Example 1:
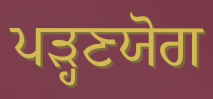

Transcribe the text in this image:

ਪੜ੍ਹਣਯੋਗ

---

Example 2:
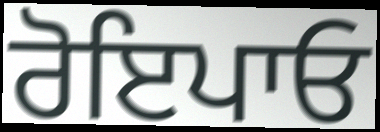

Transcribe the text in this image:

ਰੋਇਪਾਓ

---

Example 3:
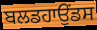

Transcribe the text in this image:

ਬਲਡਹਾਉਂਡਸ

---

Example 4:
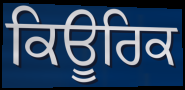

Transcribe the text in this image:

ਕਿਊਰਿਕ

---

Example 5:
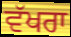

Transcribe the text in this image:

ਵੱਖਰਾ